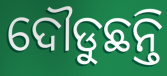
ଦୌଡୁଛନ୍ତି